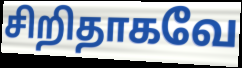
சிறிதாகவே